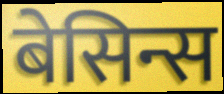
बेसिन्स